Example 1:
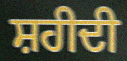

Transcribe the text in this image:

ਸ਼ਹੀਦੀ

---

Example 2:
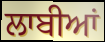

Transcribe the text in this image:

ਲਾਬੀਆਂ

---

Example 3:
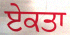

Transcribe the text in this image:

ਏਕਤਾ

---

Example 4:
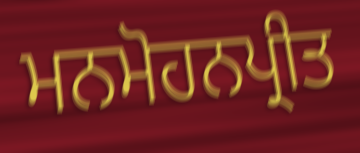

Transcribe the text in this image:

ਮਨਮੋਹਨਪ੍ਰੀਤ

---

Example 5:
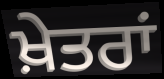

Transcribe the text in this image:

ਖ਼ੇਤਰਾਂ